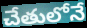
చేతులోనే